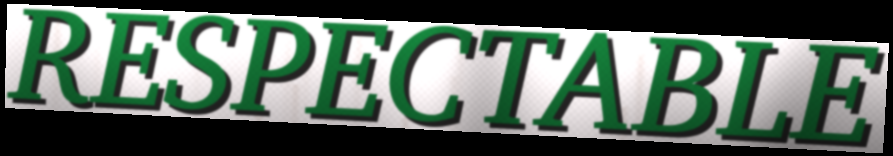
RESPECTABLE